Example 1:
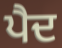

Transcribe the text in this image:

ਪੈਦ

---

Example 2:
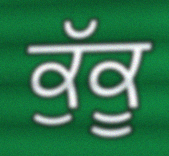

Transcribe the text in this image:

ਕੁੱਕੂ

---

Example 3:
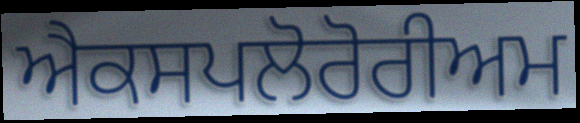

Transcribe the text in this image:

ਐਕਸਪਲੋਰੋਰੀਅਮ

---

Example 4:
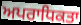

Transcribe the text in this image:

ਅਪਰਾਧਿਕਤਾ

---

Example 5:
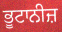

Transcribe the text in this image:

ਭੂਟਾਨੀਜ਼